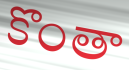
కొంతా